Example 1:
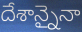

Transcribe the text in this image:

దేశాన్నైనా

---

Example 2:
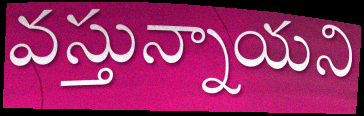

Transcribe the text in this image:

వస్తున్నాయని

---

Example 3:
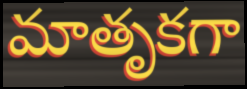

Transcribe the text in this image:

మాతృకగా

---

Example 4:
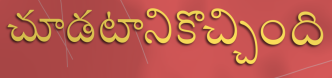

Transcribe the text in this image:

చూడటానికొచ్చింది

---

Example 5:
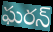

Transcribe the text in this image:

ఘరన్